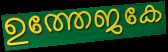
ഉത്തേജകേ